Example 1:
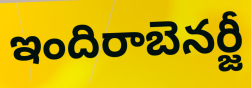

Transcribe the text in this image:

ఇందిరాబెనర్జీ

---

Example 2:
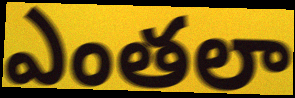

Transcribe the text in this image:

ఎంతలా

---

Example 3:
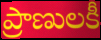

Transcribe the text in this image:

ప్రాణులకీ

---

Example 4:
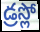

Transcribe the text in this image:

డ్రస్లో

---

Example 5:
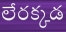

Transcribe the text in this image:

లేరక్కడ